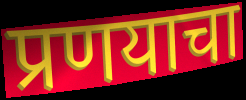
प्रणयाचा